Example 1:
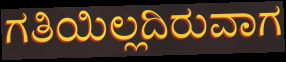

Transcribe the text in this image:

ಗತಿಯಿಲ್ಲದಿರುವಾಗ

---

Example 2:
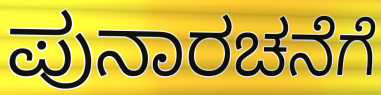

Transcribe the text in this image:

ಪುನಾರಚನೆಗೆ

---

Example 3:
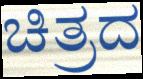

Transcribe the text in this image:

ಚಿತ್ರದ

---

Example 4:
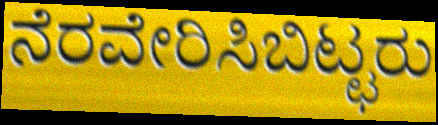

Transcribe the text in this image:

ನೆರವೇರಿಸಿಬಿಟ್ಟರು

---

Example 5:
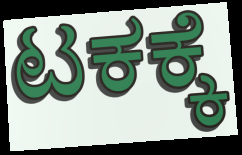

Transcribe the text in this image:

ಟಕಕ್ಕೆ